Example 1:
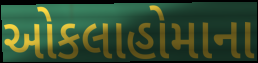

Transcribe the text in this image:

ઓકલાહોમાના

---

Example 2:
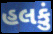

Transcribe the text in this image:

હલકું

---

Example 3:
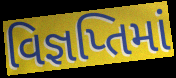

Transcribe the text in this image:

વિજ્ઞપ્તિમાં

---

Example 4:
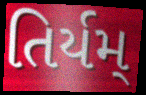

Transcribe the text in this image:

તિર્યમ્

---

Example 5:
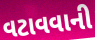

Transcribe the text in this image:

વટાવવાની